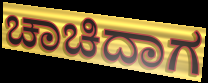
ಚಾಚಿದಾಗ